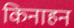
किनाहन